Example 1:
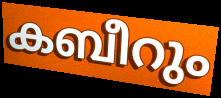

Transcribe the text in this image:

കബീറും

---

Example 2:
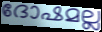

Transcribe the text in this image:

ദോഷമല്ല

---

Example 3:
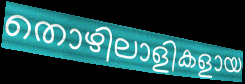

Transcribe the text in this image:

തൊഴിലാളികളായ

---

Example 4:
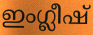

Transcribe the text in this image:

ഇംഗ്ലീഷ്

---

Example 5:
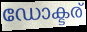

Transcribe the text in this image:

ഡോക്ടര്